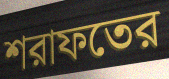
শরাফতের